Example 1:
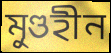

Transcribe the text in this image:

মুণ্ডহীন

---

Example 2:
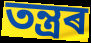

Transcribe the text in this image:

তন্ত্ৰৰ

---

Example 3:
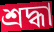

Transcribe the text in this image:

শ্ৰদ্ধা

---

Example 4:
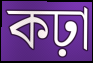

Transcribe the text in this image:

কঢ়া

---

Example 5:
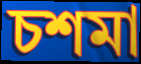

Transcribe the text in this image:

চশমা